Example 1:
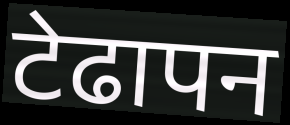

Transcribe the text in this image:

टेढापन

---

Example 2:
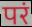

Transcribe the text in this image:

परं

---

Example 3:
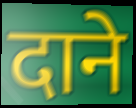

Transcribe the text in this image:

दाने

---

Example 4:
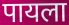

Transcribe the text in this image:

पायला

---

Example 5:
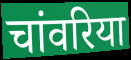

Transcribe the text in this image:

चांवरिया